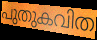
പുതുകവിത